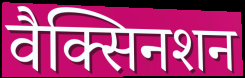
वैक्सिनशन